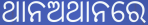
ଥାନଅଥାନରେ